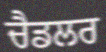
ਚੈਡਲਰ